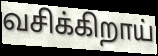
வசிக்கிறாய்